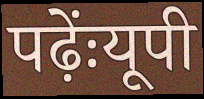
पढ़ेंःयूपी